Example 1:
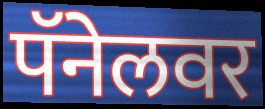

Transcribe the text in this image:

पॅनेलवर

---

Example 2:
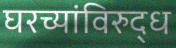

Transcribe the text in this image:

घरच्यांविरुद्ध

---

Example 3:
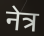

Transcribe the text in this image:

नेत्र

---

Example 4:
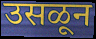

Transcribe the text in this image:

उसळून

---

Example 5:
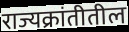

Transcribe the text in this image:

राज्यक्रांतीतील